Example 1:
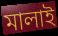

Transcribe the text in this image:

মালাই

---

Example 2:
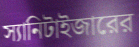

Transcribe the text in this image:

স্যানিটাইজারের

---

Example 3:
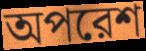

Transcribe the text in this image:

অপরেশ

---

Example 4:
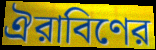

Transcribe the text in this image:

ঐরাবিণের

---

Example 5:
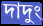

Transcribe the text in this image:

দাদুং